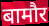
बामौर